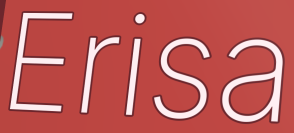
Erisa